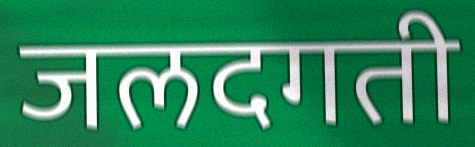
जलदगती